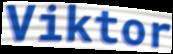
Viktor